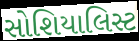
સોશિયાલિસ્ટ